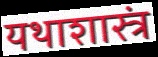
यथाशास्त्रं